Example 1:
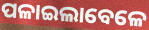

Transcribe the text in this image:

ପଳାଇଲାବେଳେ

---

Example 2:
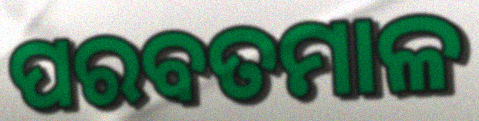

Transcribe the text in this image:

ପରବତମାଳ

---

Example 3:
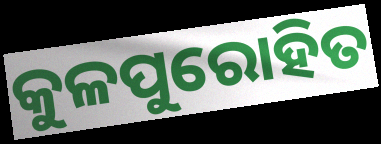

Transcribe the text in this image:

କୁଳପୁରୋହିତ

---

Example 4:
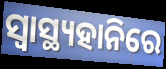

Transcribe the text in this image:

ସ୍ୱାସ୍ଥ୍ୟହାନିରେ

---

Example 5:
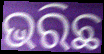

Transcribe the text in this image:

ଭରିଛ